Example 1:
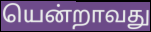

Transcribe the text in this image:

யென்றாவது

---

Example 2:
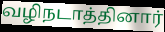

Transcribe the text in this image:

வழிநடாத்தினார்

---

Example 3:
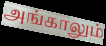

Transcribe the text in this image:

அங்காலும்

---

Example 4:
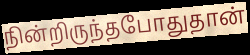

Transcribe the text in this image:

நின்றிருந்தபோதுதான்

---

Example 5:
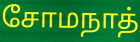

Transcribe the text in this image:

சோமநாத்